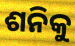
ଶନିକୁ